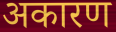
अकारण